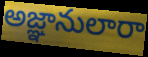
అజ్ఞానులారా